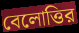
বেলোত্তির